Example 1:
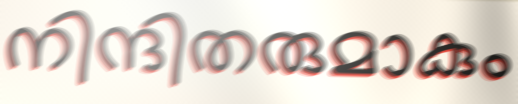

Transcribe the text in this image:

നിന്ദിതരുമാകും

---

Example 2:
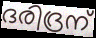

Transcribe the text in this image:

ദരിദ്രന്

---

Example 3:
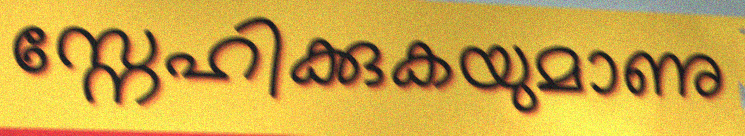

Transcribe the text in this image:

സ്നേഹിക്കുകയുമാണു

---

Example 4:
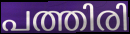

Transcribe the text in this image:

പത്തിരി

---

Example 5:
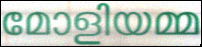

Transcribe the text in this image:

മോളിയമ്മ